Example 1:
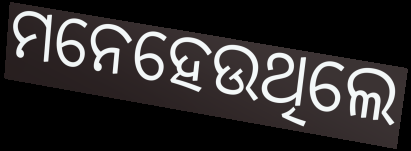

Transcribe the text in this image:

ମନେହେଉଥିଲେ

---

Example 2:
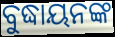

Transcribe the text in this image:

ବୁଦ୍ଧାୟନଙ୍କ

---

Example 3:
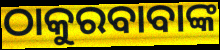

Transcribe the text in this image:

ଠାକୁରବାବାଙ୍କ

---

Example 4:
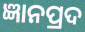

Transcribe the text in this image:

ଜ୍ଞାନପ୍ରଦ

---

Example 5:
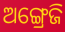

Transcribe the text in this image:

ଅଙ୍ଗ୍ରେଜି